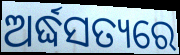
ଅର୍ଦ୍ଧସତ୍ୟରେ